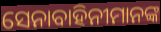
ସେନାବାହିନୀମାନଙ୍କ